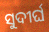
ସୁଦୀର୍ଘ